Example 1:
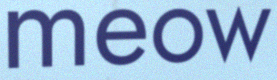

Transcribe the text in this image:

meow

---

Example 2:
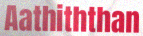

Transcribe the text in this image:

Aathiththan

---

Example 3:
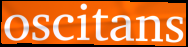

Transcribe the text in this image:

oscitans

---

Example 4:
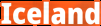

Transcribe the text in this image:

Iceland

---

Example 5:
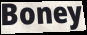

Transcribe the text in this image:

Boney